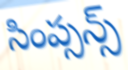
సింప్సన్స్